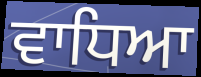
ਵਾਧਿਆ